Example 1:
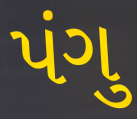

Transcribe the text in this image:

પંગુ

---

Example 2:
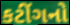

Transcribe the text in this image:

કટીંગનો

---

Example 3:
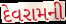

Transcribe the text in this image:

દેવરામની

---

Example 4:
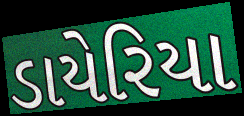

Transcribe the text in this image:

ડાયેરિયા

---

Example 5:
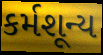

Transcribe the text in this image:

કર્મશૂન્ય